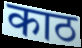
काठ